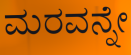
ಮರವನ್ನೇ